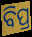
ବିପ୍ର